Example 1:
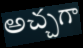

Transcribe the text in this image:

అచ్చగా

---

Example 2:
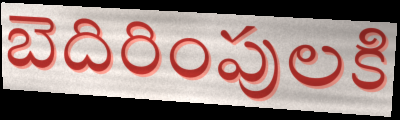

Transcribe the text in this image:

బెదిరింపులకి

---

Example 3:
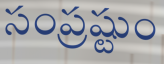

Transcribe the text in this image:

సంప్రష్టుం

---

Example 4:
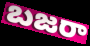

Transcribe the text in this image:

బజరా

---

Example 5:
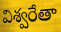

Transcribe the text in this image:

విశ్వరేతా